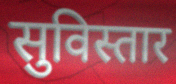
सुविस्तार